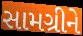
સામગ્રીને